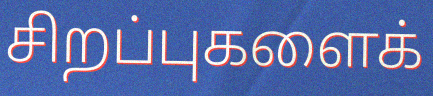
சிறப்புகளைக்